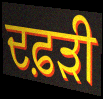
ਦਫ਼ੜੀ